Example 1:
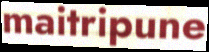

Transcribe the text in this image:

maitripune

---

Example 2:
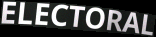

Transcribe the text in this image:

ELECTORAL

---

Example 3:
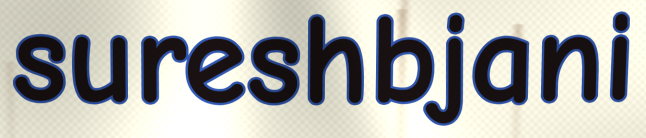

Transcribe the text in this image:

sureshbjani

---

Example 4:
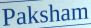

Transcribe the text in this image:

Paksham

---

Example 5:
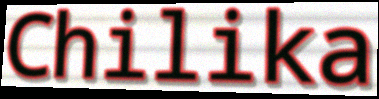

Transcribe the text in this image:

Chilika